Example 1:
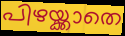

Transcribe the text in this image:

പിഴയ്ക്കാതെ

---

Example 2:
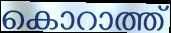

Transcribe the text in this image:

കൊറാത്ത്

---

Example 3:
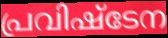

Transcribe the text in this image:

പ്രവിഷ്ടേന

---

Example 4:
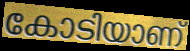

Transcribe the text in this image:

കോടിയാണ്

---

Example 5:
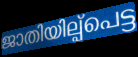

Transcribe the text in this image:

ജാതിയില്പ്പെട്ട